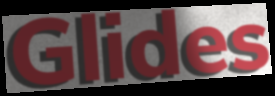
Glides